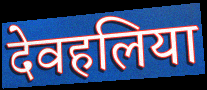
देवहलिया